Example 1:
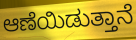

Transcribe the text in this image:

ಆಣೆಯಿಡುತ್ತಾನೆ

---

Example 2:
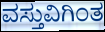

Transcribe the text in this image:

ವಸ್ತುವಿಗಿಂತ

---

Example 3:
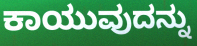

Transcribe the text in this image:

ಕಾಯುವುದನ್ನು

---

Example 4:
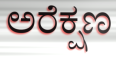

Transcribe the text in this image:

ಅರೆಕ್ಷಣ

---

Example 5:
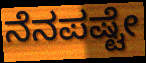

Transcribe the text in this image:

ನೆನಪಷ್ಟೇ